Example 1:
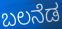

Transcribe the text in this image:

ಬಲನೆಡ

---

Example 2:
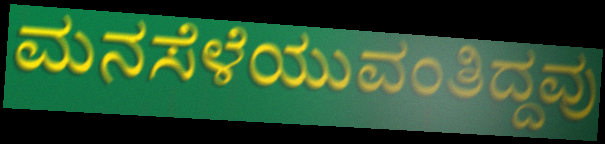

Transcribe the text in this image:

ಮನಸೆಳೆಯುವಂತಿದ್ದವು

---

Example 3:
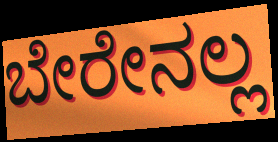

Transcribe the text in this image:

ಬೇರೇನಲ್ಲ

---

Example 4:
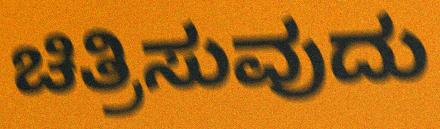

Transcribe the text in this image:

ಚಿತ್ರಿಸುವುದು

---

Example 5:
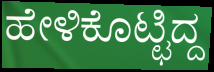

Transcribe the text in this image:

ಹೇಳಿಕೊಟ್ಟಿದ್ದ